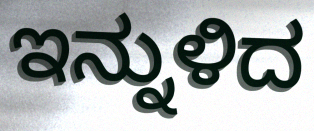
ಇನ್ನುಳಿದ